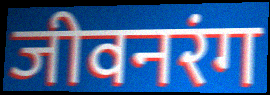
जीवनरंग